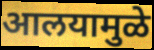
आलयामुळे